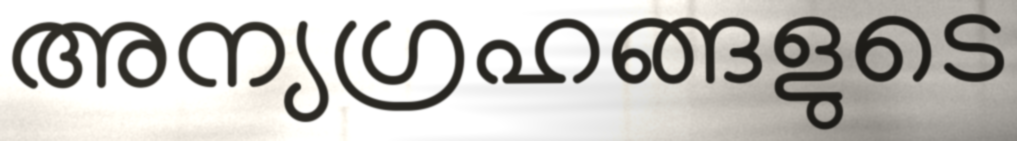
അന്യഗ്രഹങ്ങളുടെ